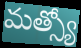
మత్స్యో